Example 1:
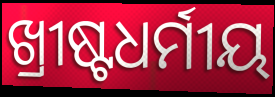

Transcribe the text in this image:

ଖ୍ରୀଷ୍ଟଧର୍ମୀୟ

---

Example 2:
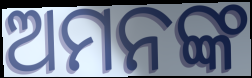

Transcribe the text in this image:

ଅମନଙ୍କ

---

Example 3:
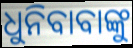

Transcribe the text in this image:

ଧୁନିବାବାଙ୍କୁ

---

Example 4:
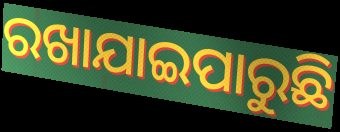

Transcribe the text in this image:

ରଖାଯାଇପାରୁଛି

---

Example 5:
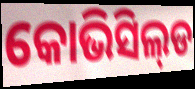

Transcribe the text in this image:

କୋଭିସିଲ୍‌ଡ